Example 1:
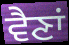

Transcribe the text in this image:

ਵੈਣਾਂ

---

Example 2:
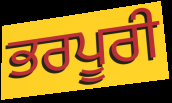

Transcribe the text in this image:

ਭਰਪੂਰੀ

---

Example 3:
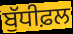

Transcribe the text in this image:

ਬੁੱਧੀਫ਼ਲ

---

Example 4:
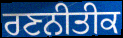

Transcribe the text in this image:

ਰਣਨੀਤੀਕ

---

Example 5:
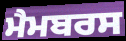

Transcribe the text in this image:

ਮੈਮਬਰਸ